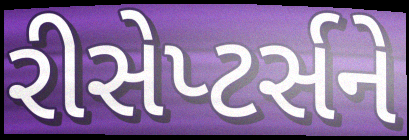
રીસેપ્ટર્સને